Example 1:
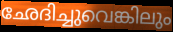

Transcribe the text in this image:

ഛേദിച്ചുവെങ്കിലും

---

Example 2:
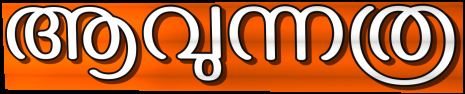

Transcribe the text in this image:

ആവുന്നത്ര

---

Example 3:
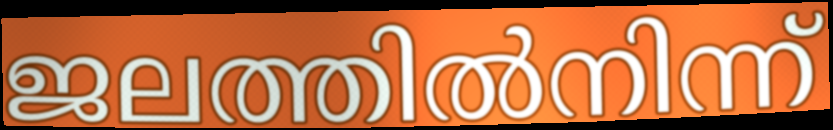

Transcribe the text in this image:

ജലത്തിൽനിന്ന്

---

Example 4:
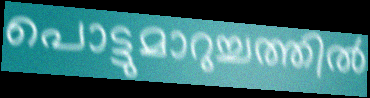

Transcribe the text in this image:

പൊട്ടുമാറുച്ചത്തിൽ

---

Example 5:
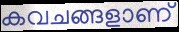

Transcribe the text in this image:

കവചങ്ങളാണ്